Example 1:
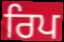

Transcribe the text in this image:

ਰਿਪ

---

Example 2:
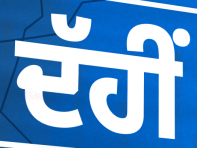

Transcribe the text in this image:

ਦੱਹੀਂ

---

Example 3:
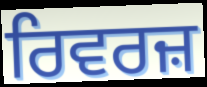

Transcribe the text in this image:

ਰਿਵਰਜ਼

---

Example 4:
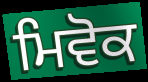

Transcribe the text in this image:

ਮਿਵੋਕ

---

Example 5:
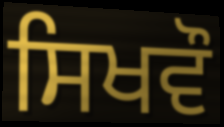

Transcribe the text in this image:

ਸਿਖਵੌ